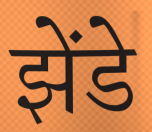
झेंडे